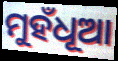
ମୁହଁଧୂଆ